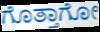
ಗೊತ್ತಾಗೋ